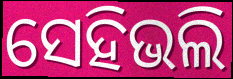
ସେହିଭଲି